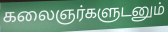
கலைஞர்களுடனும்